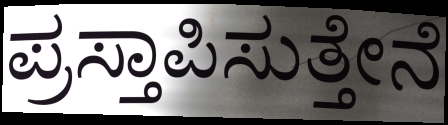
ಪ್ರಸ್ತಾಪಿಸುತ್ತೇನೆ